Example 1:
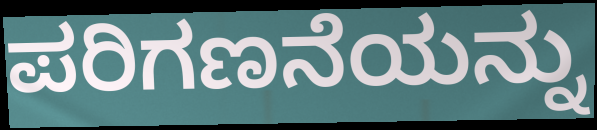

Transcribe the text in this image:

ಪರಿಗಣನೆಯನ್ನು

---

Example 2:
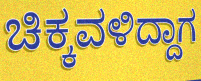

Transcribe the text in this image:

ಚಿಕ್ಕವಳಿದ್ದಾಗ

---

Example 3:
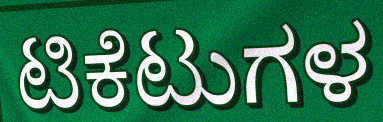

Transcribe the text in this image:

ಟಿಕೆಟುಗಳ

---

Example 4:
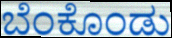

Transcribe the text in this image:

ಬೆಂಕೊಂಡು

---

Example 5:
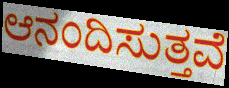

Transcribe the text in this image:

ಆನಂದಿಸುತ್ತವೆ